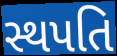
સ્થપતિ